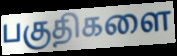
பகுதிகளை